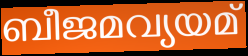
ബീജമവ്യയമ്